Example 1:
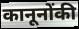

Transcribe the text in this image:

कानूनोंकी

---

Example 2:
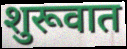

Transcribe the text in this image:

शुरूवात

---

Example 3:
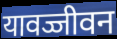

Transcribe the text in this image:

यावज्जीवन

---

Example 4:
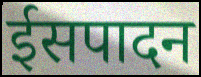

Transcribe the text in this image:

ईसपादन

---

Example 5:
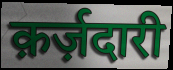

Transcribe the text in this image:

क़र्ज़दारी